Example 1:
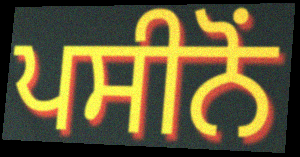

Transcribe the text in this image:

ਪਸੀਨੋਂ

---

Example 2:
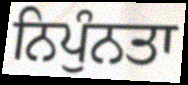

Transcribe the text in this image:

ਨਿਪੁੰਨਤਾ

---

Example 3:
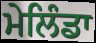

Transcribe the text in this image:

ਮੇਲਿੰਡਾ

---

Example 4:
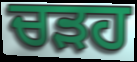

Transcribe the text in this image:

ਚੜਹ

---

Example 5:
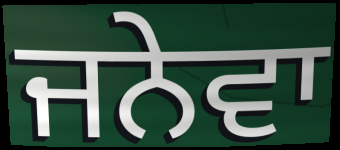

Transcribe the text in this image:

ਜਨੇਵਾ